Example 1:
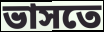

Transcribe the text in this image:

ভাসতে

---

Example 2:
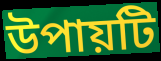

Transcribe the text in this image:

উপায়টি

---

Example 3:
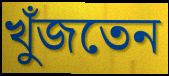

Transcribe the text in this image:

খুঁজতেন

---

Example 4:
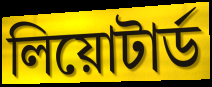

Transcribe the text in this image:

লিয়োটার্ড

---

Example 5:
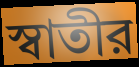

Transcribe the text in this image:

স্বাতীর